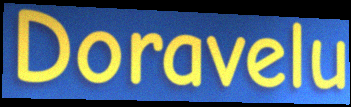
Doravelu